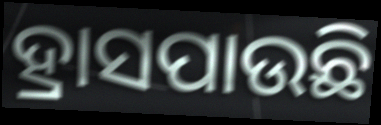
ହ୍ରାସପାଉଛି